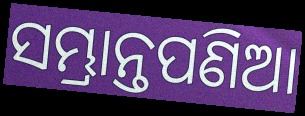
ସମ୍ଭ୍ରାନ୍ତପଣିଆ